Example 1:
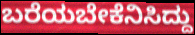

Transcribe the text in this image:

ಬರೆಯಬೇಕೆನಿಸಿದ್ದು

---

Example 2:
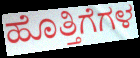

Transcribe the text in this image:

ಹೊತ್ತಿಗೆಗಳ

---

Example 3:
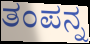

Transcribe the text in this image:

ತಂಪನ್ನ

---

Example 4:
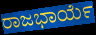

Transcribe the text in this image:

ರಾಜಭಾರ್ಯೆ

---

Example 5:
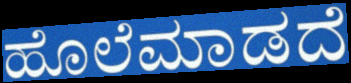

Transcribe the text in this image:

ಹೊಲೆಮಾಡದೆ